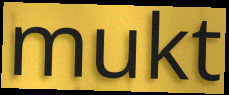
mukt